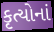
કૃત્યોનાં